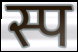
स्प